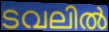
ടവലിൽ